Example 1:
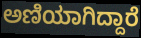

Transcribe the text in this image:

ಅಣಿಯಾಗಿದ್ದಾರೆ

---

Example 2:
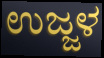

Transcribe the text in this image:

ಉಜ್ಜಳ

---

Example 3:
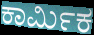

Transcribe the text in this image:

ಕಾರ್ಮಿಕ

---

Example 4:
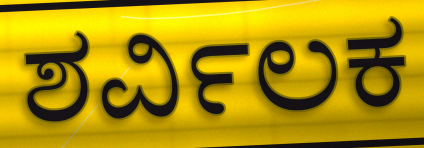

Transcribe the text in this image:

ಶರ್ವಿಲಕ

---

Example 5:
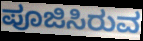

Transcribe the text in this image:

ಪೂಜಿಸಿರುವ